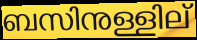
ബസിനുള്ളില്